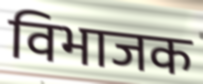
विभाजक